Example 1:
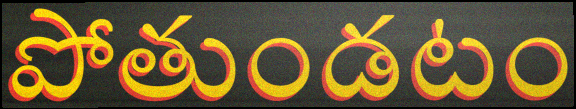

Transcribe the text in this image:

పోతుండటం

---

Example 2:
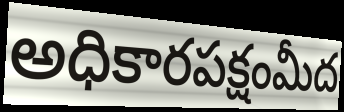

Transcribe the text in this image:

అధికారపక్షంమీద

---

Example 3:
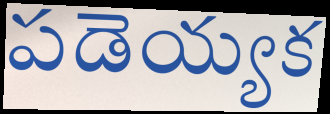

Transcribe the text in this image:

పడెయ్యక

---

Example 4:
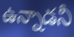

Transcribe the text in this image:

ఉన్నాడనీ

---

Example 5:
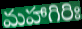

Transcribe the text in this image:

మహాగిరిః